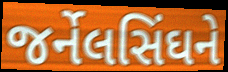
જર્નેલસિંઘને